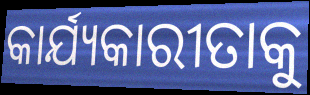
କାର୍ଯ୍ୟକାରୀତାକୁ